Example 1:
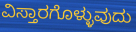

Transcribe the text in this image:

ವಿಸ್ತಾರಗೊಳ್ಳುವುದು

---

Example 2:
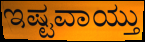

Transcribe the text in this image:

ಇಷ್ಟವಾಯ್ತು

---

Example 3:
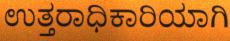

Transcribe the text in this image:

ಉತ್ತರಾಧಿಕಾರಿಯಾಗಿ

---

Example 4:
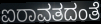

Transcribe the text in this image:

ಐರಾವತದಂತೆ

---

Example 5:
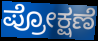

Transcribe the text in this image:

ಪ್ರೋಕ್ಷಣೆ